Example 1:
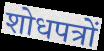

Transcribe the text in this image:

शोधपत्रों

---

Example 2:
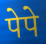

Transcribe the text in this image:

पेपे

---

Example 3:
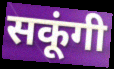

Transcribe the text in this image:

सकूंगी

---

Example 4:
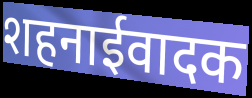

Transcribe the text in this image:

शहनाईवादक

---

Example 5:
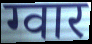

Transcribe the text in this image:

ग्वार